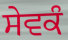
ਸੇਵਕੰ